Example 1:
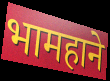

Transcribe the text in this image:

भामहाने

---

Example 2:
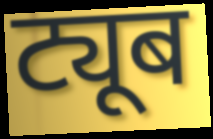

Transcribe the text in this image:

ट्यूब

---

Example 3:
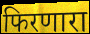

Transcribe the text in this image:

फिरणारा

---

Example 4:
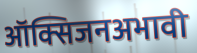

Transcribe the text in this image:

ऑक्सिजनअभावी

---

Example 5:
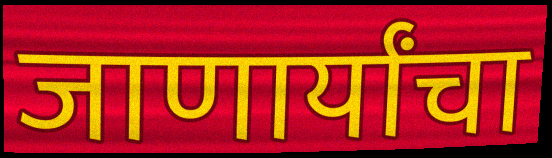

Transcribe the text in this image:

जाणार्यांचा